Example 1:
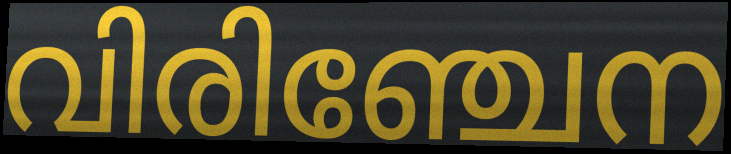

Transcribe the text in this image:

വിരിഞ്ചേന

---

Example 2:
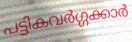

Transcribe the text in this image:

പട്ടികവർഗ്ഗക്കാർ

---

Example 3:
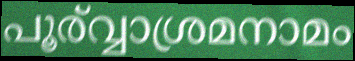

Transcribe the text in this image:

പൂര്വ്വാശ്രമനാമം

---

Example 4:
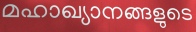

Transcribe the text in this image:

മഹാഖ്യാനങ്ങളുടെ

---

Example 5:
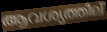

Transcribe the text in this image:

ആവശ്യത്തില്